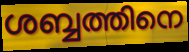
ശബ്ബത്തിനെ